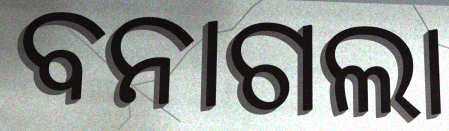
ବନାଗଲା